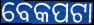
ବେକପଟା